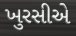
ખુરસીએ